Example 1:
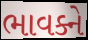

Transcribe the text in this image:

ભાવક્ને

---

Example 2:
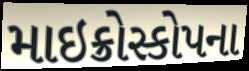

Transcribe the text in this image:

માઇક્રોસ્કોપના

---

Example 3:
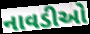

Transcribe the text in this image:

નાવડીઓ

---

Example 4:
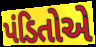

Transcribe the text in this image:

પંડિતોએ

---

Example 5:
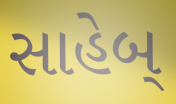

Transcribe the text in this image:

સાહેબ્